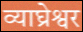
व्याघ्रेश्वर